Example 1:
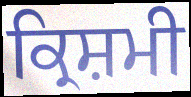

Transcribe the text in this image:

ਕ੍ਰਿਸ਼ਮੀ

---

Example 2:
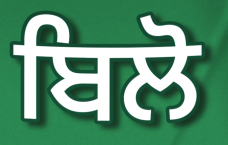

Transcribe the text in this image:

ਬਿਲੋ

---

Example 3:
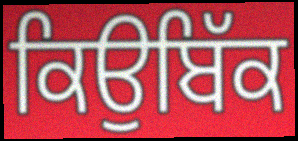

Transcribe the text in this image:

ਕਿਉਬਿੱਕ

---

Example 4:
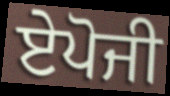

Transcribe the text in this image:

ਏਪੋਜੀ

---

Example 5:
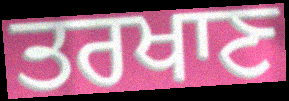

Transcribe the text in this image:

ਤਰਖਾਣ